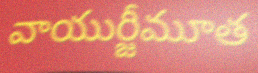
వాయుర్జీమూత